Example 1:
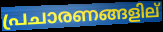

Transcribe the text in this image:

പ്രചാരണങ്ങളില്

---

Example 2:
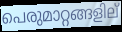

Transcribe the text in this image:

പെരുമാറ്റങ്ങളില്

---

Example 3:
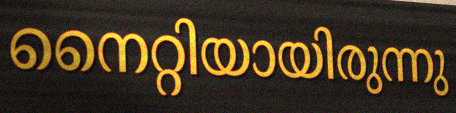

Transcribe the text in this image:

നൈറ്റിയായിരുന്നു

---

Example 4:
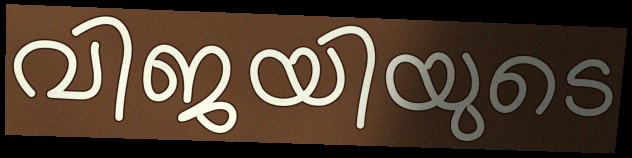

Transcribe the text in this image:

വിജയിയുടെ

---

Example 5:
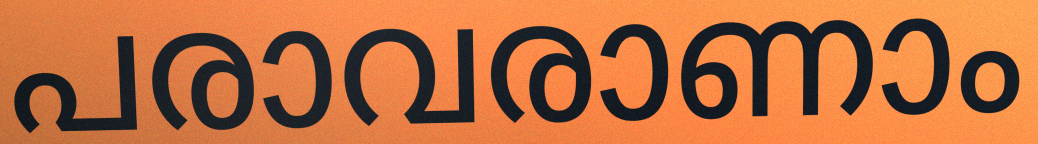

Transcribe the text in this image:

പരാവരാണാം